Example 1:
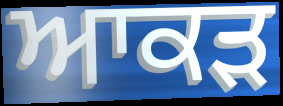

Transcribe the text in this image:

ਆਕੜ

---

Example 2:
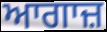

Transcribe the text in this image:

ਆਗਾਜ਼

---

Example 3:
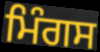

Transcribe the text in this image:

ਮਿੰਗਸ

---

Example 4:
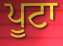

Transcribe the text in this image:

ਪੂਟਾ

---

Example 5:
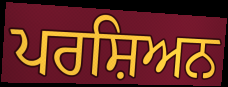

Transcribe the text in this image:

ਪਰਸ਼ਿਅਨ